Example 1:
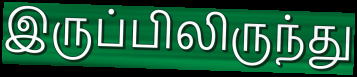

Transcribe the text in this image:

இருப்பிலிருந்து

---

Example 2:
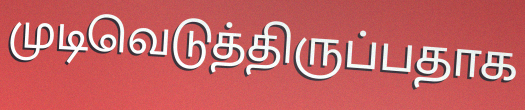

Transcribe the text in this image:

முடிவெடுத்திருப்பதாக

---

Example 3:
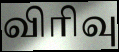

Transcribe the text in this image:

விரிவு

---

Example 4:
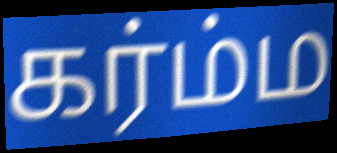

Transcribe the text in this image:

கர்ம்ம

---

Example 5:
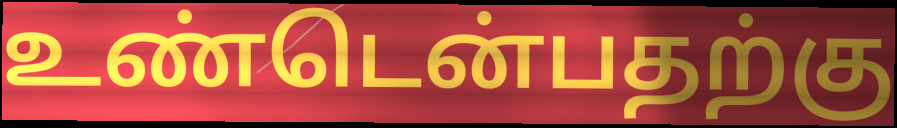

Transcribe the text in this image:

உண்டென்பதற்கு